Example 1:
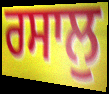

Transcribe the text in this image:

ਰਸਾਲੁ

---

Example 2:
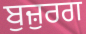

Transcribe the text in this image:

ਬੁਜ਼ੁਰਗ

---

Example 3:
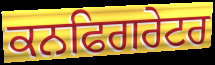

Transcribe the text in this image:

ਕਨਫਿਗਰੇਟਰ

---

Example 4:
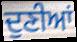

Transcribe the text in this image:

ਦੁਣੀਆਂ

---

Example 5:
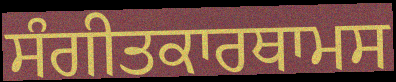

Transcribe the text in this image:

ਸੰਗੀਤਕਾਰਥਾਮਸ